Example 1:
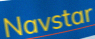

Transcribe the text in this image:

Navstar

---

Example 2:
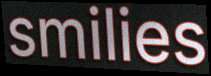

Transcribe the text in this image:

smilies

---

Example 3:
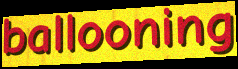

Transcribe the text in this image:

ballooning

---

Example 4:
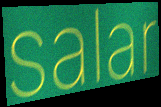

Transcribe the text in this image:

salar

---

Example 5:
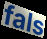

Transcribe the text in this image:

fals